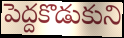
పెద్దకొడుకుని